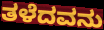
ತಳೆದವನು